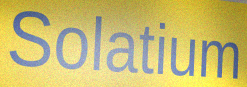
Solatium